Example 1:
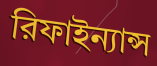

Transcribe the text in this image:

রিফাইন্যান্স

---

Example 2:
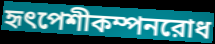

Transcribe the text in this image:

হৃৎপেশীকম্পনরোধ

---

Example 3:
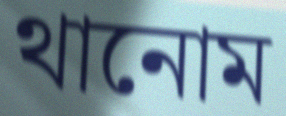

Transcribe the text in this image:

থানোম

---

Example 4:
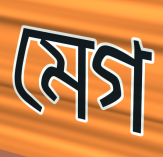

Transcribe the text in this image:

মেগ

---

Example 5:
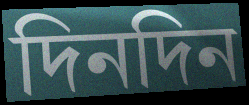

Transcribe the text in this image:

দিনদিন